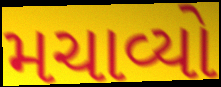
મચાવ્યો